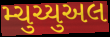
મ્ચુચ્યુઅલ